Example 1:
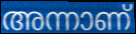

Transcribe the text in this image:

അന്നാണ്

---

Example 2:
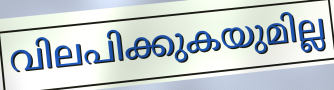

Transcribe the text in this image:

വിലപിക്കുകയുമില്ല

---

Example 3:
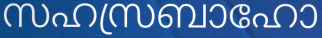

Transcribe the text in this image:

സഹസ്രബാഹോ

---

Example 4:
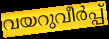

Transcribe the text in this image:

വയറുവീർപ്പ്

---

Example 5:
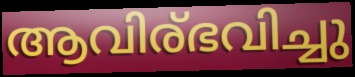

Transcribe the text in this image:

ആവിര്ഭവിച്ചു